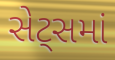
સેટ્સમાં